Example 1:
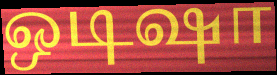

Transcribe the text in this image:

ஒடிஷா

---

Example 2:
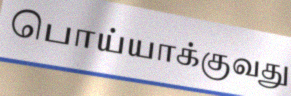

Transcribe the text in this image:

பொய்யாக்குவது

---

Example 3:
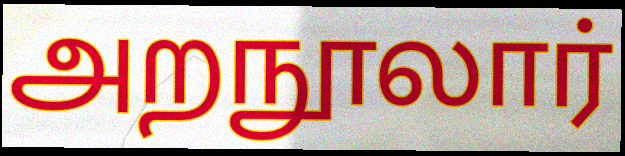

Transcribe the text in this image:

அறநூலார்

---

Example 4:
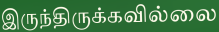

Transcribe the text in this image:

இருந்திருக்கவில்லை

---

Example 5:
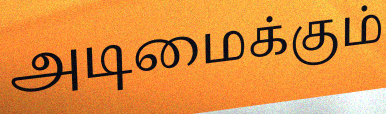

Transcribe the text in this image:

அடிமைக்கும்